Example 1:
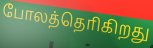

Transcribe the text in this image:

போலத்தெரிகிறது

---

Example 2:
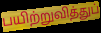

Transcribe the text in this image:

பயிற்றுவித்துப்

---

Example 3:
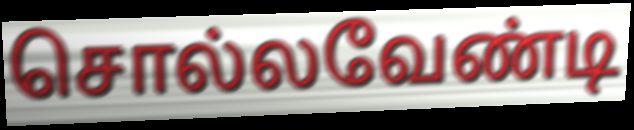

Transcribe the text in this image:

சொல்லவேண்டி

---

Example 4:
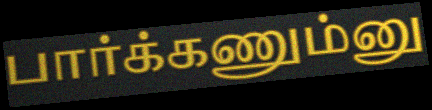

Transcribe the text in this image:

பார்க்கணும்னு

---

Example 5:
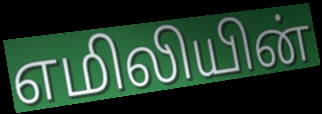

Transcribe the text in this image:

எமிலியின்